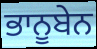
ਭਾਨੂਬੇਨ